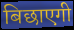
बिछाएगी